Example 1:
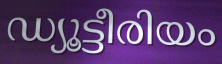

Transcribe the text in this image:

ഡ്യൂട്ടീരിയം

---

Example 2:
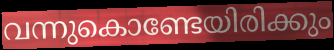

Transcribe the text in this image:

വന്നുകൊണ്ടേയിരിക്കും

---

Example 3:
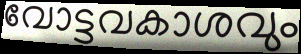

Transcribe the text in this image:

വോട്ടവകാശവും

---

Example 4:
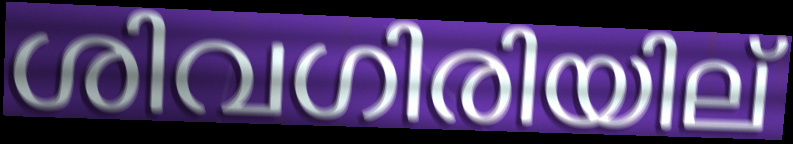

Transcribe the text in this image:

ശിവഗിരിയില്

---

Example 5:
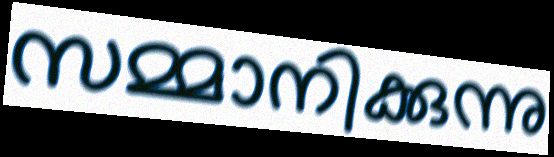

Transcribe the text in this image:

സമ്മാനിക്കുന്നു